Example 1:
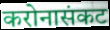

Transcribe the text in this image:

करोनासंकट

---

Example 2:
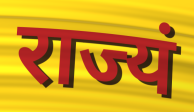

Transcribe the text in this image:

राज्यं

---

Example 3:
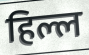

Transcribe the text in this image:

हिल्ल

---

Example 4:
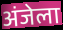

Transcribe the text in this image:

अंजेला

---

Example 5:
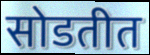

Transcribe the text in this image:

सोडतीत